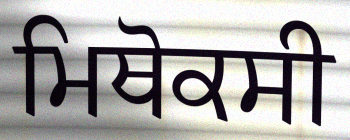
ਮਿਥੋਕਸੀ